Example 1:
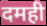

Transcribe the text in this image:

दमही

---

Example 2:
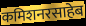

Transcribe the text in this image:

कमिशनरसाहेब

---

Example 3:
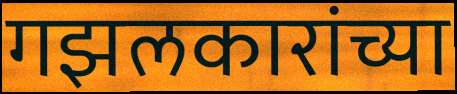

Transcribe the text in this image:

गझलकारांच्या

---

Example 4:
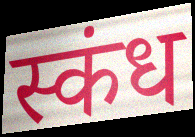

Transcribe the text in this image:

स्कंध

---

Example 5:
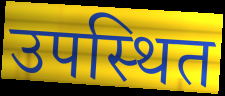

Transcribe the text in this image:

उपस्थित